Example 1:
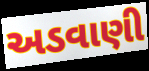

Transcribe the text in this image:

અડવાણી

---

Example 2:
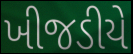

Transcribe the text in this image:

ખીજડીયે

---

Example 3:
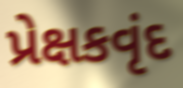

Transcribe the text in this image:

પ્રેક્ષકવૃંદ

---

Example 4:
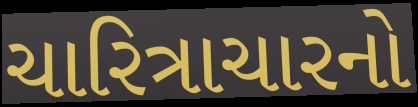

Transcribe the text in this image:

ચારિત્રાચારનો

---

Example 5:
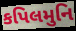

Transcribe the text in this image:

કપિલમુનિ